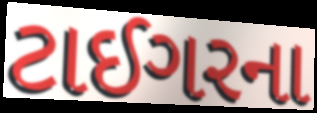
ટાઈગરના